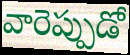
వారెప్పుడో